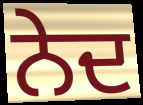
ਨੇਦ